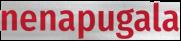
nenapugala